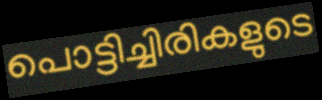
പൊട്ടിച്ചിരികളുടെ